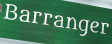
Barranger